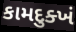
કામદુક્ખં